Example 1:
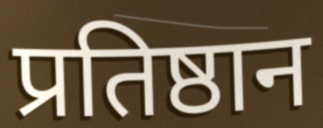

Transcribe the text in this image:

प्रतिष्ठान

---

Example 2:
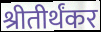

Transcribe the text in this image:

श्रीतीर्थंकर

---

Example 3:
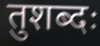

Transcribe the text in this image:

तुशब्दः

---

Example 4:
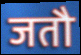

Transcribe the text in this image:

जतौ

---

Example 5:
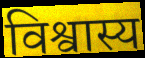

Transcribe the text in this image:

विश्वास्य